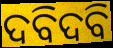
ଦବିଦବି